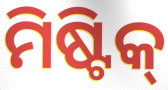
ମିଷ୍ଟିକ୍